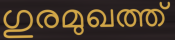
ഗുരമുഖത്ത്